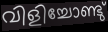
വിളിച്ചോണ്ടു്